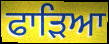
ਫਾੜਿਆ